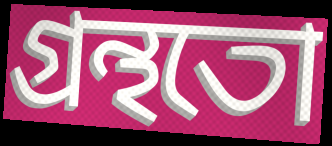
গ্ৰন্থতো